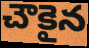
చౌకైన